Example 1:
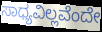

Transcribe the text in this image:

ಸಾಧ್ಯವಿಲ್ಲವೆಂದೇ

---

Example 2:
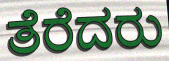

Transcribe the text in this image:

ತೆರೆದರು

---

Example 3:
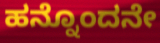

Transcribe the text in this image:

ಹನ್ನೊಂದನೇ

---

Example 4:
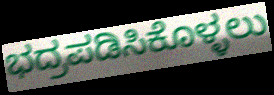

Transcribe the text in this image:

ಭದ್ರಪಡಿಸಿಕೊಳ್ಳಲು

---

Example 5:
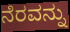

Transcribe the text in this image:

ನೆರವನ್ನು